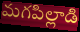
మగపిల్లాడి